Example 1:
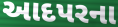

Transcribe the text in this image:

આદપરના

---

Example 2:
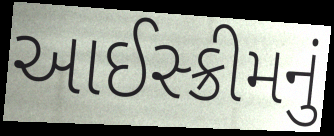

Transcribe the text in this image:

આઈસ્ક્રીમનું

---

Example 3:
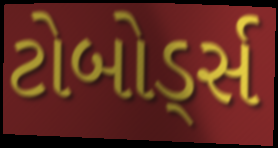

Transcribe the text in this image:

ટોબોર્ડ્સ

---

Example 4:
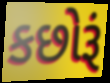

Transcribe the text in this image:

કછોરૂં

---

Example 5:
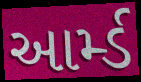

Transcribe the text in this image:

આર્મ્ડ